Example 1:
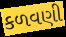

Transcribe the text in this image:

કળવણી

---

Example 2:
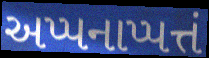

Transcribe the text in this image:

અપ્પનાપ્પત્તં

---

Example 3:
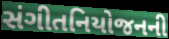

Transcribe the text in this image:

સંગીતનિયોજનની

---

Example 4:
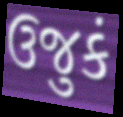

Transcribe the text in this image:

ઉજુકં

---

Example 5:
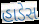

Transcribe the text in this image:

હાડેસ